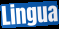
Lingua